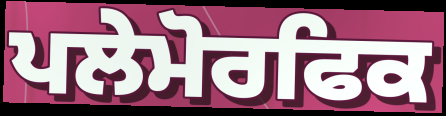
ਪਲੇਮੋਰਫਿਕ